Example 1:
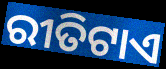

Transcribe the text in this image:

ରୀତିଟାଏ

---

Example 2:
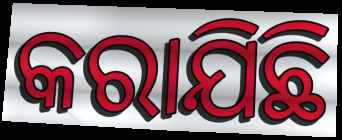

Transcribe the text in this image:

କରାଯିଛି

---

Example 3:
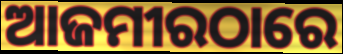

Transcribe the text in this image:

ଆଜମୀରଠାରେ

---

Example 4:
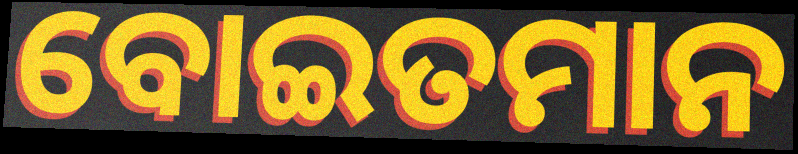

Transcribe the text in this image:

ବୋଇତମାନ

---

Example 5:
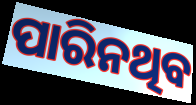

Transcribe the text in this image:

ପାରିନଥିବ